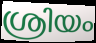
ശ്രിയം